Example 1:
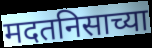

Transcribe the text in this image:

मदतनिसाच्या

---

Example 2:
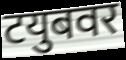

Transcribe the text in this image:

टयुबवर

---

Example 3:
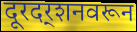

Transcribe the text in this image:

दूरदर्शनवरून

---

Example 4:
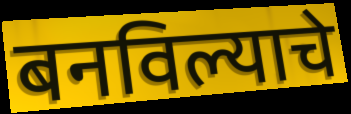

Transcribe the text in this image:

बनविल्याचे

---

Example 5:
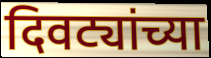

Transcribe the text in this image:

दिवट्यांच्या